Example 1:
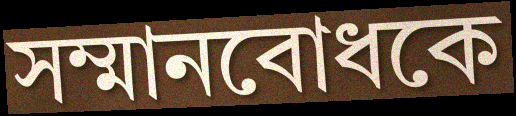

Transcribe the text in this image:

সম্মানবোধকে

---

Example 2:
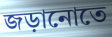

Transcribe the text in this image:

জড়ানোতে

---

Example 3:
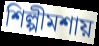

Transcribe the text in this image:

শিল্পীমশায়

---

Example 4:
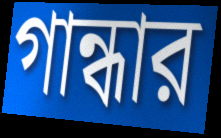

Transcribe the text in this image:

গান্ধার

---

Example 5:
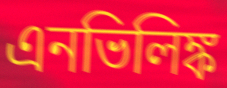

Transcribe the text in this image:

এনভিলিঙ্ক